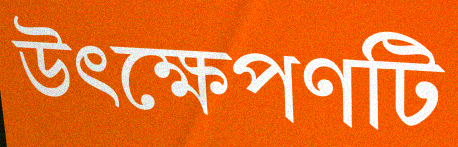
উৎক্ষেপণটি